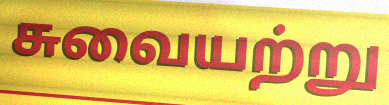
சுவையற்று